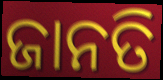
ଜାନତି